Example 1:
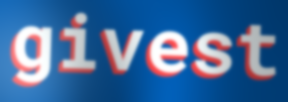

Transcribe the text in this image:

givest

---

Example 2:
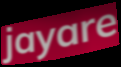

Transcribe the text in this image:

jayare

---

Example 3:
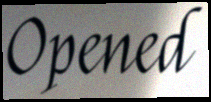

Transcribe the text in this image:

Opened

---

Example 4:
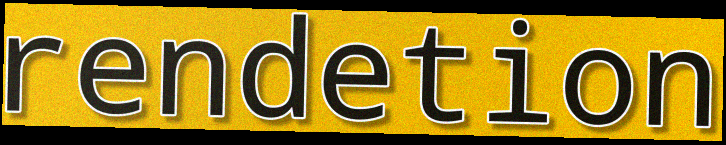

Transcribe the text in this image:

rendetion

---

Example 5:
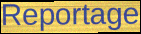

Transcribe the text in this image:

Reportage